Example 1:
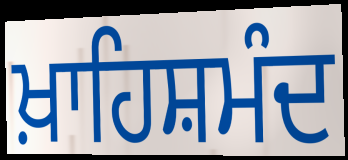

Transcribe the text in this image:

ਖ਼ਾਹਿਸ਼ਮੰਦ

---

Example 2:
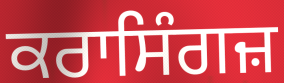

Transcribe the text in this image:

ਕਰਾਸਿੰਗਜ਼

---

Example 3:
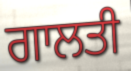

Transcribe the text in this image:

ਗਾਲਤੀ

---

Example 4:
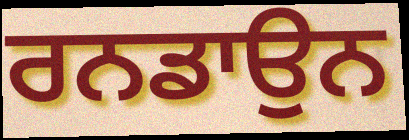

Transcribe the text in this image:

ਰਨਡਾਉਨ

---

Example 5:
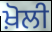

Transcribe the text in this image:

ਖ਼ੋਲੀ